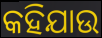
କହିଯାଉ